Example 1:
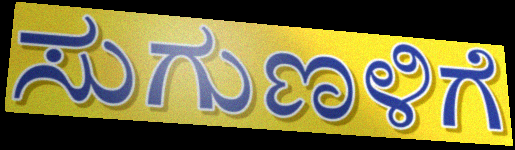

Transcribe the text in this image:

ಸುಗುಣಳಿಗೆ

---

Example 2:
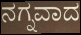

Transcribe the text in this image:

ನಗ್ನವಾದ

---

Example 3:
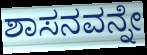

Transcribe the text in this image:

ಶಾಸನವನ್ನೇ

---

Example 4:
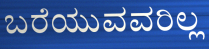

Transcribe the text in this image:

ಬರೆಯುವವರಿಲ್ಲ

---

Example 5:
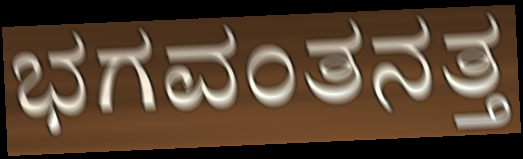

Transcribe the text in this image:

ಭಗವಂತನತ್ತ